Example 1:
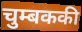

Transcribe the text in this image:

चुम्बककी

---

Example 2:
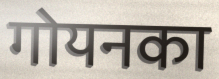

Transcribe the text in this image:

गोयनका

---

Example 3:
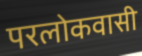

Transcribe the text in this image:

परलोकवासी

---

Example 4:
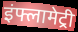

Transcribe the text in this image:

इंफ्लामेट्री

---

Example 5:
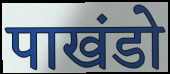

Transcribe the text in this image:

पाखंडो